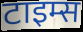
टाइम्स